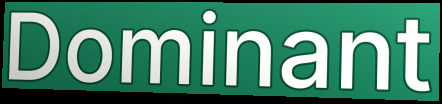
Dominant